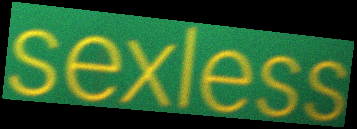
sexless